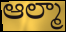
ఆల్మా